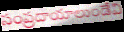
సంప్రదాయాలుండేవి